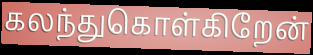
கலந்துகொள்கிறேன்